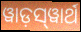
ୱାଡ଼ସ୍‌ୱାର୍ଥ